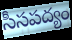
సీసపద్యం